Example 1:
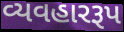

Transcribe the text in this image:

વ્યવહારરૂપ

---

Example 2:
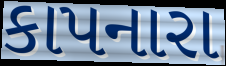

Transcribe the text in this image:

કાપનારા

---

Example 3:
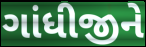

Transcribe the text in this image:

ગાંધીજીને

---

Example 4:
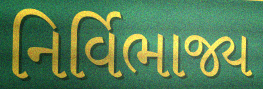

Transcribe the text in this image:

નિર્વિભાજ્ય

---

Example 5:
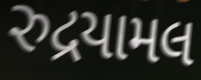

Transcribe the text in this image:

રુદ્રયામલ